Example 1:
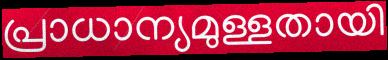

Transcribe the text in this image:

പ്രാധാന്യമുള്ളതായി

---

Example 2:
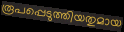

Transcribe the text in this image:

രൂപപ്പെടുത്തിയതുമായ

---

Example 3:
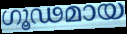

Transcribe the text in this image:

ഗൂഢമായ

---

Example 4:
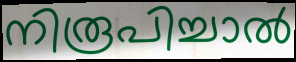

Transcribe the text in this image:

നിരൂപിച്ചാൽ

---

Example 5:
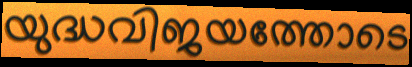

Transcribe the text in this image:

യുദ്ധവിജയത്തോടെ